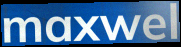
maxwel